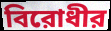
বিরোধীর